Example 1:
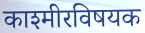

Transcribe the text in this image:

काश्मीरविषयक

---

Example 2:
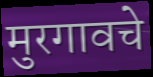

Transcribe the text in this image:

मुरगावचे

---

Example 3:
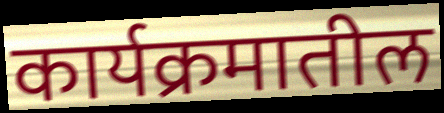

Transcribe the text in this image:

कार्यक्रमातील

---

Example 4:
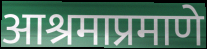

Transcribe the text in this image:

आश्रमाप्रमाणे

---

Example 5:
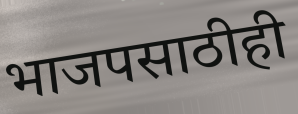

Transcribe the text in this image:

भाजपसाठीही